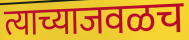
त्याच्याजवळच